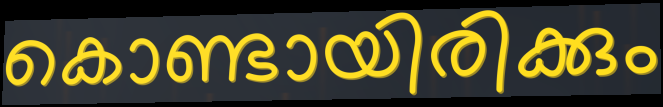
കൊണ്ടായിരിക്കും